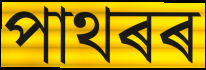
পাথৰৰ